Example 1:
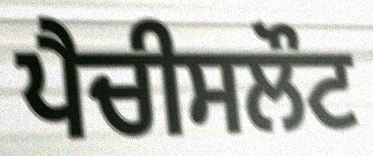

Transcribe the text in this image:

ਪੈਚੀਸਲੌਟ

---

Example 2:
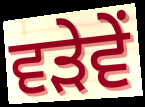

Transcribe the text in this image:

ਵੜੇਵੇਂ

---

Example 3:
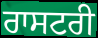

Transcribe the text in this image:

ਰਾਸਟਰੀ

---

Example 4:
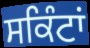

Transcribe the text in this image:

ਸਕਿੰਟਾਂ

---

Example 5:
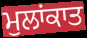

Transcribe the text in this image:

ਮੁਲਾਂਕਾਤ